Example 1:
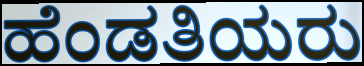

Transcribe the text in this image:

ಹೆಂಡತಿಯರು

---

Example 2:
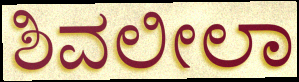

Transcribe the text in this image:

ಶಿವಲೀಲಾ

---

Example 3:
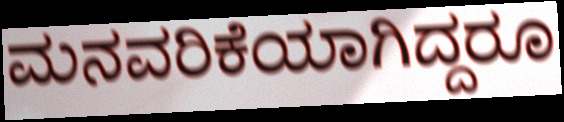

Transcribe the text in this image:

ಮನವರಿಕೆಯಾಗಿದ್ದರೂ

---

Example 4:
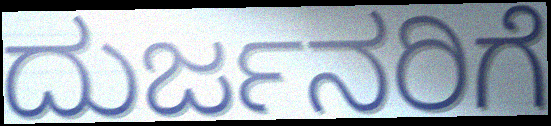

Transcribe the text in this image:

ದುರ್ಜನರಿಗೆ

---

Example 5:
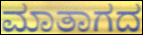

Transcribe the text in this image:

ಮಾತಾಗದ